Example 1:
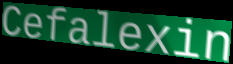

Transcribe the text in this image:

Cefalexin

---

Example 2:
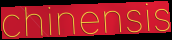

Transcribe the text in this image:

chinensis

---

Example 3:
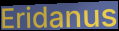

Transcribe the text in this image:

Eridanus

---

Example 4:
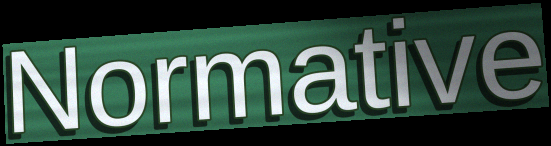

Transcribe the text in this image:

Normative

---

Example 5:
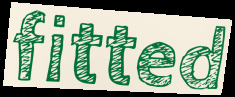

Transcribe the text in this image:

fitted